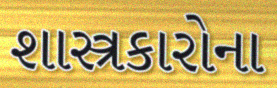
શાસ્ત્રકારોના